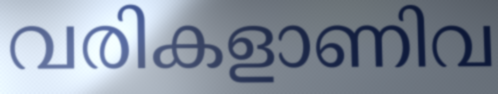
വരികളാണിവ